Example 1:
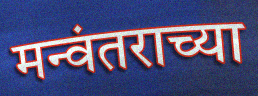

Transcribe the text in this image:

मन्वंतराच्या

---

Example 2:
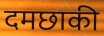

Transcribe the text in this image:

दमछाकी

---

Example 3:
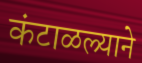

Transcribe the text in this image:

कंटाळल्याने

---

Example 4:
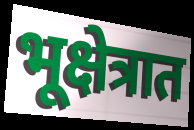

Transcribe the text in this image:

भूक्षेत्रात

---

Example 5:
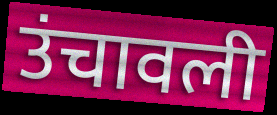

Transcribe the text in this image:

उंचावली